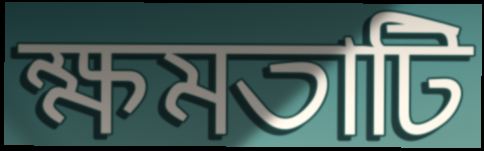
ক্ষমতাটি